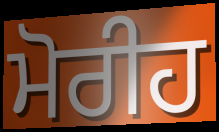
ਮੋਰੀਹ